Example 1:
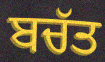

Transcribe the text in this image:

ਬਚੱਤ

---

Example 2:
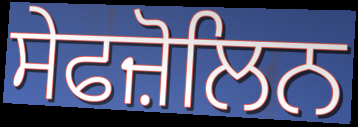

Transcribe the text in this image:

ਸੇਫਜ਼ੋਲਿਨ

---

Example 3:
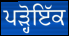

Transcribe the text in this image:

ਪੜ੍ਹੋਇੱਕ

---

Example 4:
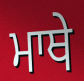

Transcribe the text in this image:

ਮਾਥੇ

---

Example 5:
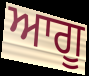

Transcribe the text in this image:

ਆਗੂ